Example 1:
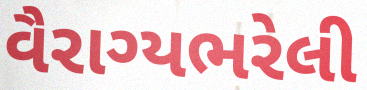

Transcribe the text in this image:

વૈરાગ્યભરેલી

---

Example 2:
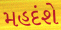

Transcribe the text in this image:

મહદંશે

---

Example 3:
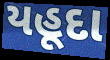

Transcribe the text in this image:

યહૂદા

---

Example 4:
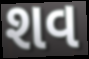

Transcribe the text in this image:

શવ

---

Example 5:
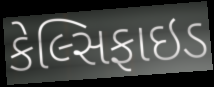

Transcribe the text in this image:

કેલ્સિફાઇડ